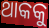
ଥାକକୁ